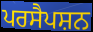
ਪਰਸੈਪਸ਼ਨ